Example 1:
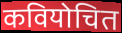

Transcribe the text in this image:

कवियोचित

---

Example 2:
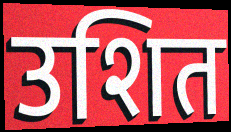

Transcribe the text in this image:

उशित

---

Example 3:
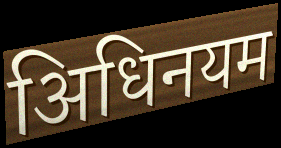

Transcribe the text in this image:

अिधिनयम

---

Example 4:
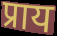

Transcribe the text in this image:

प्राय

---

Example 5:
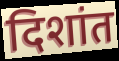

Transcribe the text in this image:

दिशांत